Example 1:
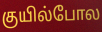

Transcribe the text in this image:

குயில்போல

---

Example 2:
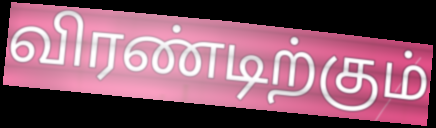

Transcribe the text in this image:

விரண்டிற்கும்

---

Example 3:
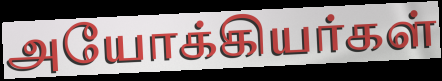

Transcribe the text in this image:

அயோக்கியர்கள்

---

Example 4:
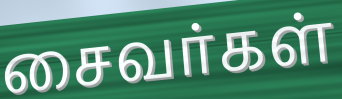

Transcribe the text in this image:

சைவர்கள்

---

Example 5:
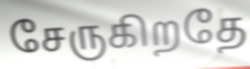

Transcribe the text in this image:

சேருகிறதே